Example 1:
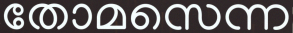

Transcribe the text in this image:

തോമസെന്ന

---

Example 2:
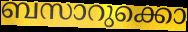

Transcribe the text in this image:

ബസാറുക്കൊ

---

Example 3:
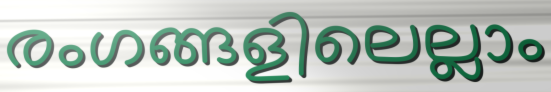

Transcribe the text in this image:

രംഗങ്ങളിലെല്ലാം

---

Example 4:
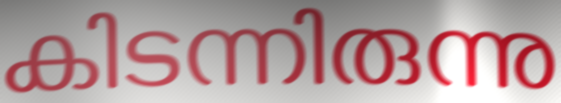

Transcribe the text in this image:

കിടന്നിരുന്നു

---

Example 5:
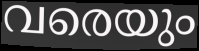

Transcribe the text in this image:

വരെയും